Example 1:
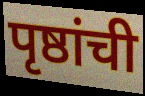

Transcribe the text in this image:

पृष्ठांची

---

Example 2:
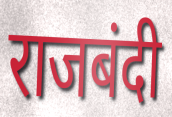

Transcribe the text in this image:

राजबंदी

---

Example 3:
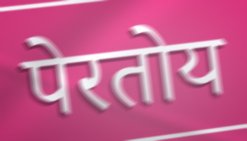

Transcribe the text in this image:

पेरतोय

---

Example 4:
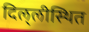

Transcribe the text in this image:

दिल्लीस्थित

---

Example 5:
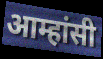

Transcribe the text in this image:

आम्हांसी